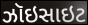
ઝૉઇસાઇટ